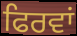
ਫਿਰਵਾਂ